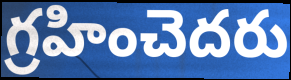
గ్రహించెదరు